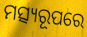
ମତ୍ସ୍ୟରୂପରେ